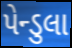
પેન્ડુલા